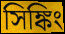
সিঙ্কিং